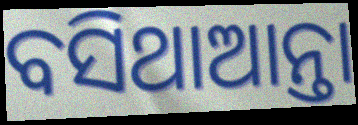
ବସିଥାଆନ୍ତା